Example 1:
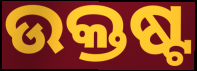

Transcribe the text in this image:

ଉକ୍ତଷ୍ଟ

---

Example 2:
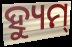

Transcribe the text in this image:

ହ୍ୟୁମ୍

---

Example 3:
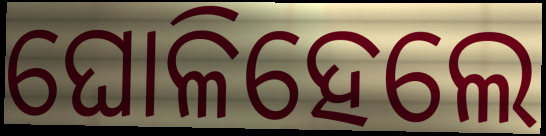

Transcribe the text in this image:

ଘୋଳିହେଲେ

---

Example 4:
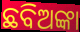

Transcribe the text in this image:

ଛବିଅଙ୍କା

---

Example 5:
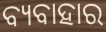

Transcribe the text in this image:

ବ୍ୟବାହାର